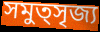
সমুত্সৃজ্য